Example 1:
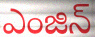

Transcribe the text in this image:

ఎంజిన్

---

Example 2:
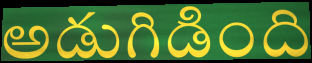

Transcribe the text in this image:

అడుగిడింది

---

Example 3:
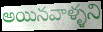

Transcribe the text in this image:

అయినవాళ్ళని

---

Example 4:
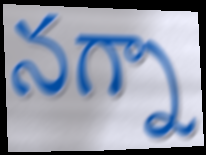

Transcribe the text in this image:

నగ్నా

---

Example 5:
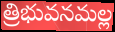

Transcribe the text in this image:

త్రిభువనమల్ల